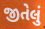
જીતેલું